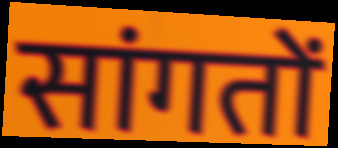
सांगतों